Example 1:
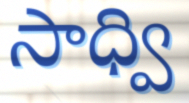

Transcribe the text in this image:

సాధ్వి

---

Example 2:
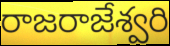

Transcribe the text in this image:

రాజరాజేశ్వరి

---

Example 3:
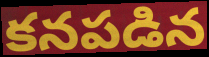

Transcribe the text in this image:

కనపడిన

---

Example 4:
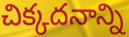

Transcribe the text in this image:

చిక్కదనాన్ని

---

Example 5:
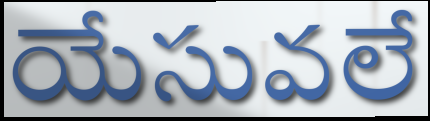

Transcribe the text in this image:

యేసువలే